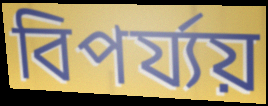
বিপৰ্য্যয়